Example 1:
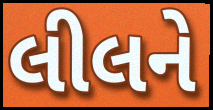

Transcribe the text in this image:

લીલને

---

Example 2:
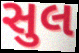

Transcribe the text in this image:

સુલ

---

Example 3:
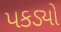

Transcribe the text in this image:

પકડ્યો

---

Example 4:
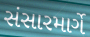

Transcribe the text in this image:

સંસારમાર્ગે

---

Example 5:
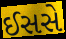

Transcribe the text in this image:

ઈસસે